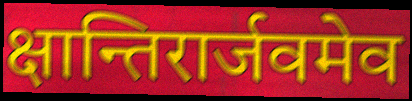
क्षान्तिरार्जवमेव